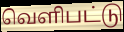
வெளிபட்டு